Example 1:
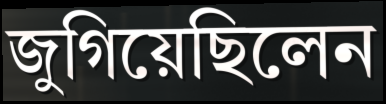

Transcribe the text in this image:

জুগিয়েছিলেন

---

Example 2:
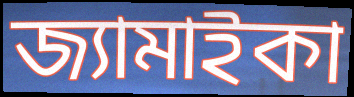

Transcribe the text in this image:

জ্যামাইকা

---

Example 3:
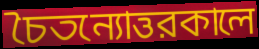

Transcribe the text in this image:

চৈতন্যোত্তরকালে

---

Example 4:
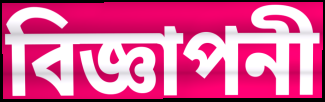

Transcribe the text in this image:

বিজ্ঞাপনী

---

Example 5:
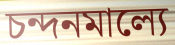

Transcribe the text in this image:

চন্দনমাল্যে